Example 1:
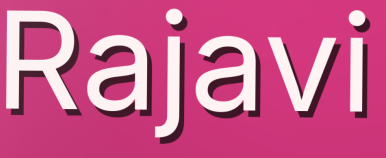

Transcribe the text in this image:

Rajavi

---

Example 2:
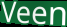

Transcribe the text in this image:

Veen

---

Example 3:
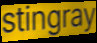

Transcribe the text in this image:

stingray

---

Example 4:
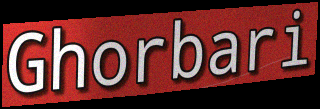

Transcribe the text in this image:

Ghorbari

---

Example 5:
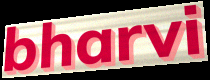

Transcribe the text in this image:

bharvi